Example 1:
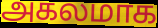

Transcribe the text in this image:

அகலமாக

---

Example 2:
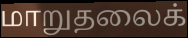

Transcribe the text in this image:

மாறுதலைக்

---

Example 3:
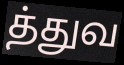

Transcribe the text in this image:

த்துவ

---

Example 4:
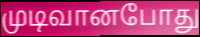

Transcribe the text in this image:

முடிவானபோது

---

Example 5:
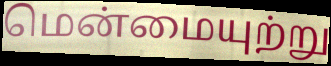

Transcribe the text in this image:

மென்மையுற்று